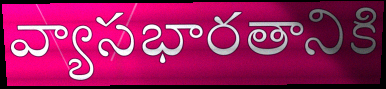
వ్యాసభారతానికి